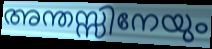
അന്തസ്സിനേയും